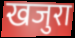
खजुरा